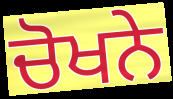
ਚੋਖਨੇ